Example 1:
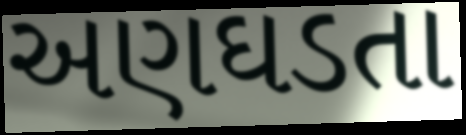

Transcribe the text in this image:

અણઘડતા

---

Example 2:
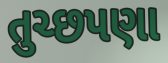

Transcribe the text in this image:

તુચ્છપણા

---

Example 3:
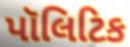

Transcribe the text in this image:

પૉલિટિક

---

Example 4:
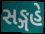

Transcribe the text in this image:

સઙ્ગહે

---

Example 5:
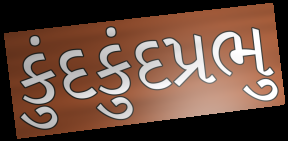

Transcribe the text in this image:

કુંદકુંદપ્રભુ